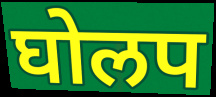
घोलप